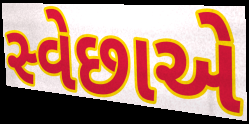
સ્વેછાએ